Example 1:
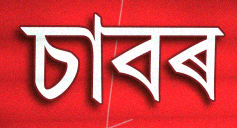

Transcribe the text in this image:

চাবৰ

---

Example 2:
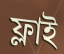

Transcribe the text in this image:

ফ্লাই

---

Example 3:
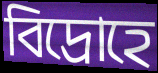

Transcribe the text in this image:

বিদ্ৰোহে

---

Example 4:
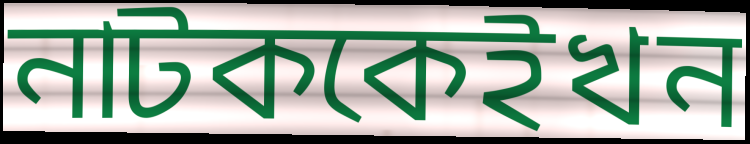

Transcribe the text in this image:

নাটককেইখন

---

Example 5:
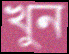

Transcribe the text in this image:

খুন